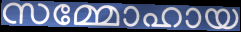
സമ്മോഹായ